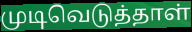
முடிவெடுத்தாள்